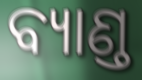
ବ୍ୟାଣ୍ଡ